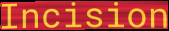
Incision